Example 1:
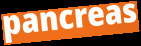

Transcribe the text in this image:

pancreas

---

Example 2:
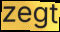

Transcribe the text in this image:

zegt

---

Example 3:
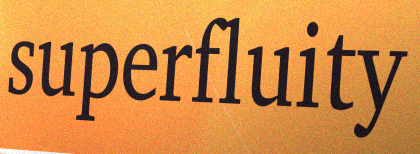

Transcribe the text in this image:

superfluity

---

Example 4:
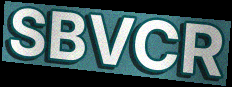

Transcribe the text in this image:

SBVCR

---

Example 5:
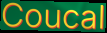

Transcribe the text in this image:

Coucal